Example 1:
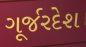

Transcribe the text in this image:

ગૂર્જરદેશ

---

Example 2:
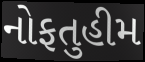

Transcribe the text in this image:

નોફતુહીમ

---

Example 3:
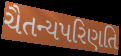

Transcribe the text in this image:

ચૈતન્યપરિણતિ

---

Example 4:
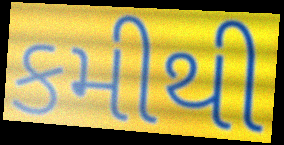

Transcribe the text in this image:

કમીથી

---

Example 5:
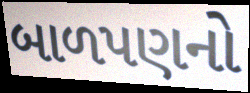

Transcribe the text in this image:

બાળપણનો